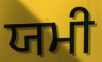
ਯਮੀ